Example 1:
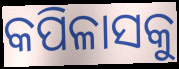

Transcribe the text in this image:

କପିଳାସକୁ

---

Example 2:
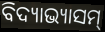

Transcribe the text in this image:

ବିଦ୍ୟାଭ୍ୟାସମ୍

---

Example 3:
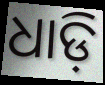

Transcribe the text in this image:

ଧାଡ଼ି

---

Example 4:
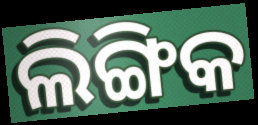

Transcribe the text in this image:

ଲିଙ୍ଗିକ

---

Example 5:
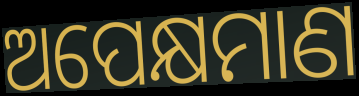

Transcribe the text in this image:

ଅପେକ୍ଷମାଣ